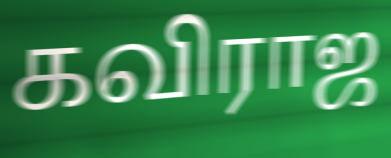
கவிராஜ